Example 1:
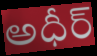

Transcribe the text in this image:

అధీర్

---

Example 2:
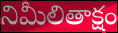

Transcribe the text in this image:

నిమీలితాక్షం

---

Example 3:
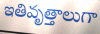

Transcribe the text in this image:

ఇతివృత్తాలుగా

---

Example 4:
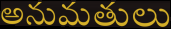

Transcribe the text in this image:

అనుమతులు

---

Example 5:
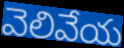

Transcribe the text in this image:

వెలివేయ